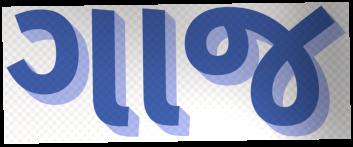
ગાજ